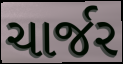
ચાર્જર